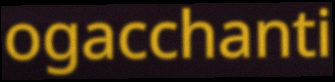
ogacchanti